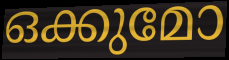
ഒക്കുമോ